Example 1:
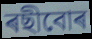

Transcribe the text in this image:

ৰছীবোৰ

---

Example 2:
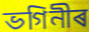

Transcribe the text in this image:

ভগিনীৰ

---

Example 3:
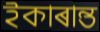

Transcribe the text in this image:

ইকাৰান্ত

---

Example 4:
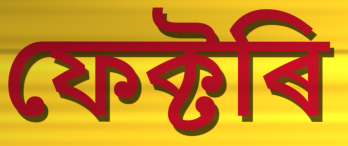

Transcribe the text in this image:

ফেক্টৰি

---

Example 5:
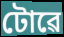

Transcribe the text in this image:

টোৱে